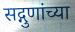
सद्गुणांच्या